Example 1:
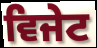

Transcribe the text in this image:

ਵਿਜੇਟ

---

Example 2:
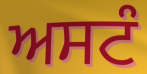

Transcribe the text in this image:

ਅਸਟੰ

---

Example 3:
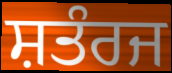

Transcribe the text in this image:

ਸ਼ਤੰਰਜ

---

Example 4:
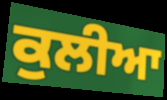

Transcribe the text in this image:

ਕੁਲੀਆ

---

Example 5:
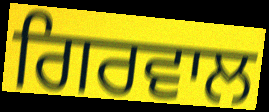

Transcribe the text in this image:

ਗਿਰਵਾਲ